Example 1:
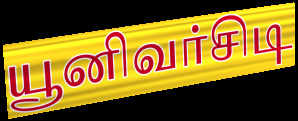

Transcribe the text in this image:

யூனிவர்சிடி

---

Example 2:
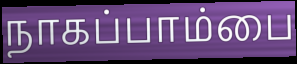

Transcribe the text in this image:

நாகப்பாம்பை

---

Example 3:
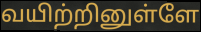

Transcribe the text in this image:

வயிற்றினுள்ளே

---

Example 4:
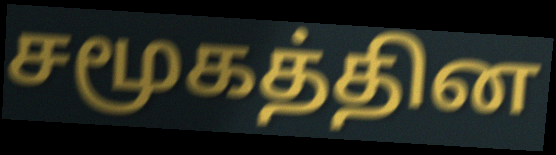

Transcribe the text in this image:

சமூகத்தின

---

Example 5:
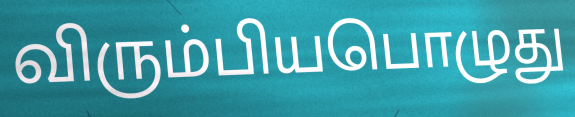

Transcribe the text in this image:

விரும்பியபொழுது